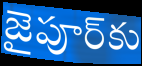
జైపూర్‌కు